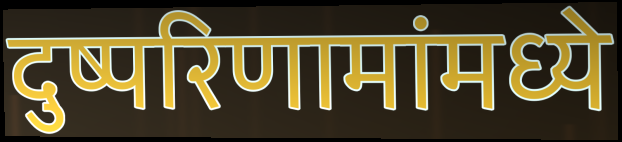
दुष्परिणामांमध्ये